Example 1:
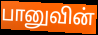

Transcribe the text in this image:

பானுவின்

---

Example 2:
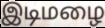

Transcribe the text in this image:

இடிமழை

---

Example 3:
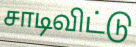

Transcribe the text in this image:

சாடிவிட்டு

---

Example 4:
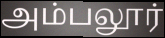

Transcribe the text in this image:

அம்பலூர்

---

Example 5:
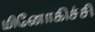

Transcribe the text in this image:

மினோகிச்சி